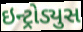
ઇન્ટ્રોડ્યુસ